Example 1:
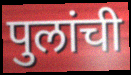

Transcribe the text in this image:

पुलांची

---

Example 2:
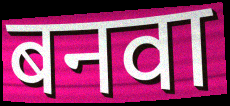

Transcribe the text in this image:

बनवा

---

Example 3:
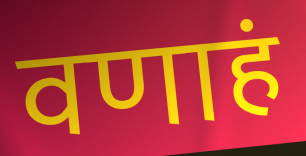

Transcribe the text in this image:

वणाहं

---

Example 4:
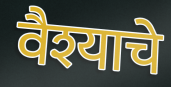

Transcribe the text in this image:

वैश्याचे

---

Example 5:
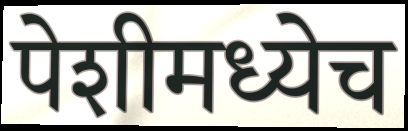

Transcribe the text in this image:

पेशीमध्येच